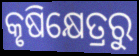
କୃଷିକ୍ଷେତ୍ରରୁ